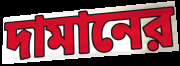
দামানের